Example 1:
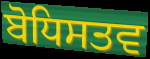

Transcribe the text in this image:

ਬੋਧਿਸਤਵ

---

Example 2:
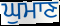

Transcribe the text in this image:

ਘੁਮਾਣ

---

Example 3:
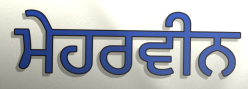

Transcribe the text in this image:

ਮੇਹਰਵੀਨ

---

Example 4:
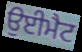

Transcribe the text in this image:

ਉਈਮੈਟ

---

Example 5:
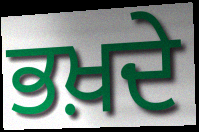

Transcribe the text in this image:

ਭਖ਼ਦੇ